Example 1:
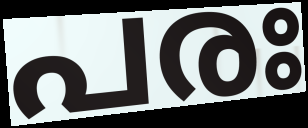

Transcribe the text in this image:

പരഃ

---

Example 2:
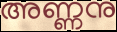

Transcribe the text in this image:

അണ്ണനു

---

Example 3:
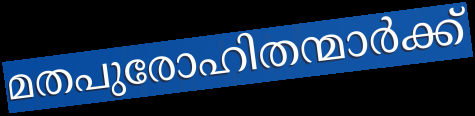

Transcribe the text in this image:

മതപുരോഹിതന്മാർക്ക്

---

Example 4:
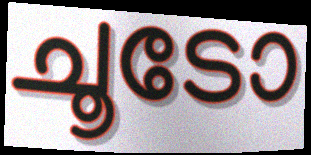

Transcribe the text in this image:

ചൂടോ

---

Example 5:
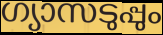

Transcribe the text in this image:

ഗ്യാസടുപ്പും